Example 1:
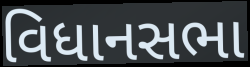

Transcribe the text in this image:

વિધાનસભા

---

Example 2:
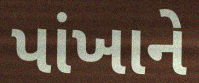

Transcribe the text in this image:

પાંખાને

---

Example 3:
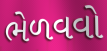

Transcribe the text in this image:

ભેળવવો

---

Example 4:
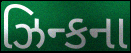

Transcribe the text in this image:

ઝિન્કના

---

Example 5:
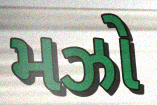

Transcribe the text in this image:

મઝો